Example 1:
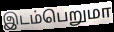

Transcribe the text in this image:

இடம்பெறுமா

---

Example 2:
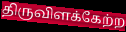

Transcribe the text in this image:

திருவிளக்கேற்ற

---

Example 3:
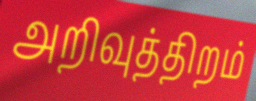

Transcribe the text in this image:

அறிவுத்திறம்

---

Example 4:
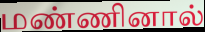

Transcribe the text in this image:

மண்ணினால்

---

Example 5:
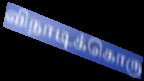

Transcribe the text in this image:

விநாடிக்கொரு